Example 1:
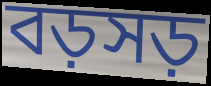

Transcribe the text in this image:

বড়সড়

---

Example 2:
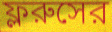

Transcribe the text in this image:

ফ্লরুসের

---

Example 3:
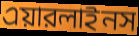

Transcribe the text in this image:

এয়ারলাইনস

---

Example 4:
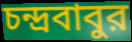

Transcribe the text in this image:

চন্দ্রবাবুর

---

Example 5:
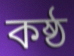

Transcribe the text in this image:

কষ্ঠ